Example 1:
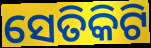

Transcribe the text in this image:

ସେତିକିଟି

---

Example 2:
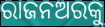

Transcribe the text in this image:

ରାଜନଅରକୁ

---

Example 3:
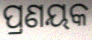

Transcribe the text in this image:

ପ୍ରଣୟକ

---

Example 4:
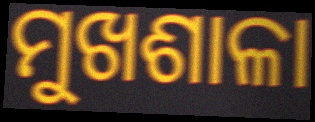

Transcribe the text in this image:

ମୁଖଶାଳା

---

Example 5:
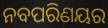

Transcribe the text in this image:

ନବପରିଣୟର